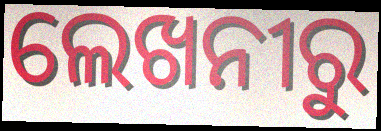
ଲେଖନୀରୁ